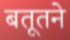
बतूतने